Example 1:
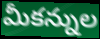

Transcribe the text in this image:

మీకన్నుల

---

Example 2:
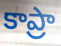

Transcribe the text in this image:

కాప్రా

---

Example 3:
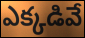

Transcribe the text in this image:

ఎక్కడివే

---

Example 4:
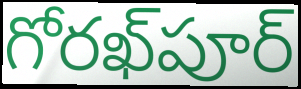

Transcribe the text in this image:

గోరఖ్‌పూర్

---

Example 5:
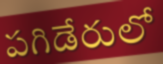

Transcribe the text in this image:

పగిడేరులో